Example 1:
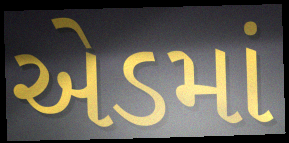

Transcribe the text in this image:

એડમાં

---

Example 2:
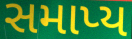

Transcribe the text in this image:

સમાપ્ય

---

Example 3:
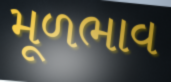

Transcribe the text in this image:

મૂળભાવ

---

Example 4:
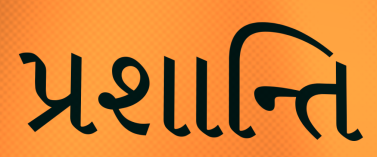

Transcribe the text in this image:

પ્રશાન્તિ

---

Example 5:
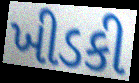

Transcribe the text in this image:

ખીડકી